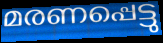
മരണപ്പെട്ടു